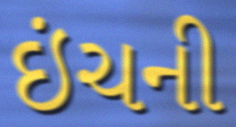
ઇંચની